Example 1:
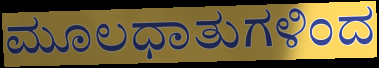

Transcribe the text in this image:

ಮೂಲಧಾತುಗಳಿಂದ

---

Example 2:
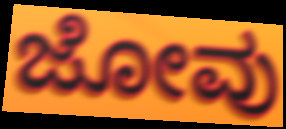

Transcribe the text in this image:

ಜೋವು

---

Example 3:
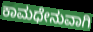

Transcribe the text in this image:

ಕಾಮಧೇನುವಾಗಿ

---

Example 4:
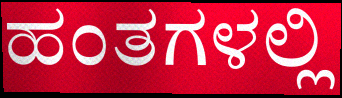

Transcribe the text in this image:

ಹಂತಗಳಲ್ಲಿ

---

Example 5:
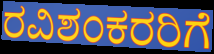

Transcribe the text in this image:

ರವಿಶಂಕರರಿಗೆ